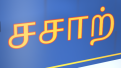
சசாற்